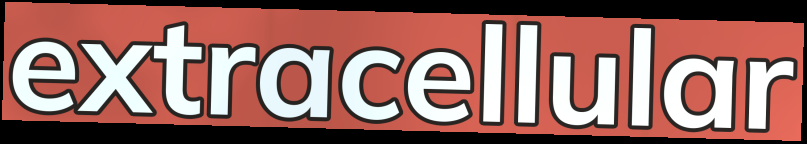
extracellular